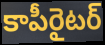
కాపీరైటర్